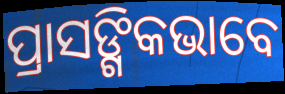
ପ୍ରାସଙ୍ଗିକଭାବେ